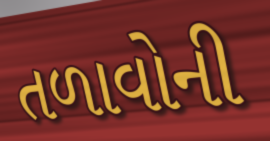
તળાવોની